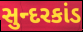
સુન્દરકાંડ